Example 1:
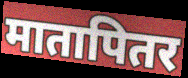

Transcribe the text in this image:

मातापितर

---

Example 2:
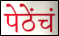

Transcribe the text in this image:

पेठेंचं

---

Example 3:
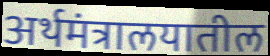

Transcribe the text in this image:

अर्थमंत्रालयातील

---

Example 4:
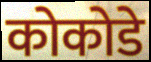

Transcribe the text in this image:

कोकोडे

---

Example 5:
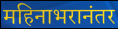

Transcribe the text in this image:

महिनाभरानंतर